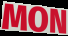
MON